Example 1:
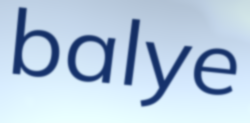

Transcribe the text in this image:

balye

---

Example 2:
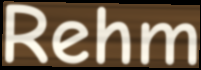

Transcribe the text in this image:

Rehm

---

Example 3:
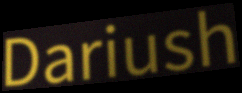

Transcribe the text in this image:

Dariush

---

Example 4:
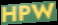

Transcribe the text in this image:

HPW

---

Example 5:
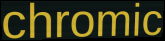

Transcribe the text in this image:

chromic